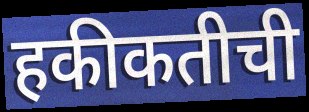
हकीकतीची